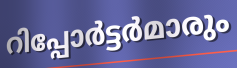
റിപ്പോർട്ടർമാരും